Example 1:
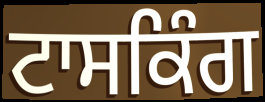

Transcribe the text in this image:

ਟਾਸਕਿੰਗ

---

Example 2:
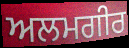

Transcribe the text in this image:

ਅਲਮਗੀਰ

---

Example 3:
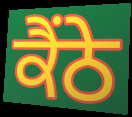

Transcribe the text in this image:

ਕੈਂਠੇ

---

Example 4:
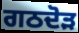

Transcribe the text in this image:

ਗਠਦੋੜ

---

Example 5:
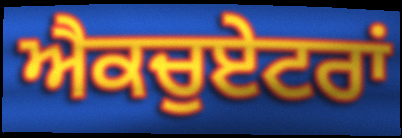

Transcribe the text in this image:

ਐਕਚੁਏਟਰਾਂ